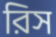
রিস